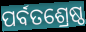
ପର୍ବତଶ୍ରେଷ୍ଠ